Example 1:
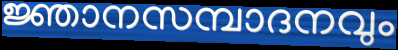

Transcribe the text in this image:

ജ്ഞാനസമ്പാദനവും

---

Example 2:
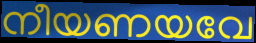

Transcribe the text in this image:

നീയണയവേ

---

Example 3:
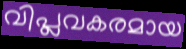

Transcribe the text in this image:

വിപ്ലവകരമായ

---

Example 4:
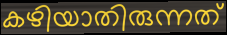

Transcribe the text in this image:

കഴിയാതിരുന്നത്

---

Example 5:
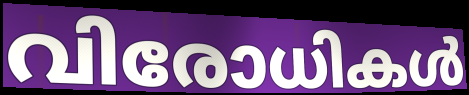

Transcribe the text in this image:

വിരോധികൾ